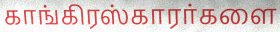
காங்கிரஸ்காரர்களை